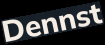
Dennst